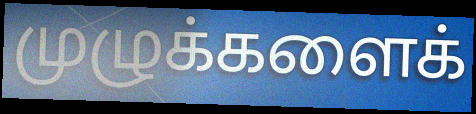
முழுக்களைக்